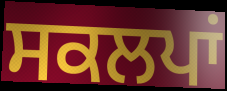
ਸਕਲਪਾਂ